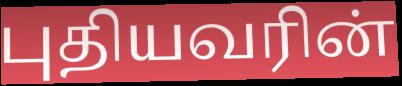
புதியவரின்